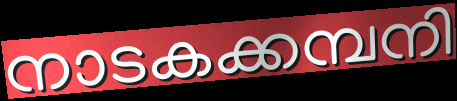
നാടകക്കമ്പനി